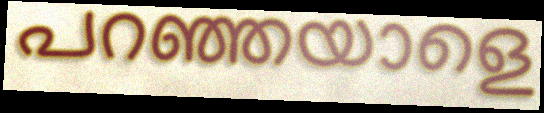
പറഞ്ഞയാളെ